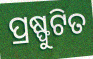
ପ୍ରଷ୍ଫୁଟିତ